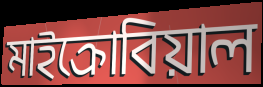
মাইক্রোবিয়াল